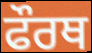
ਫੌਰਥ